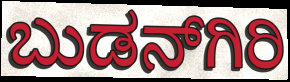
ಬುಡನ್‍ಗಿರಿ